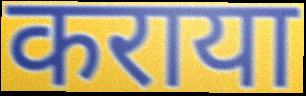
कराया